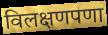
विलक्षणपणा